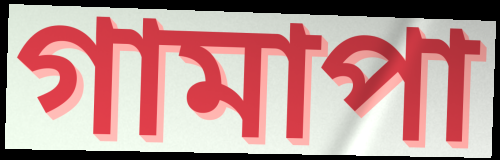
গামাপা